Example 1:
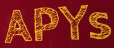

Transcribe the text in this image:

APYs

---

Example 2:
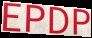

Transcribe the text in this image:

EPDP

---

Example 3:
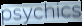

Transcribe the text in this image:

psychics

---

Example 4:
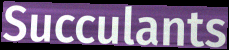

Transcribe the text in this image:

Succulants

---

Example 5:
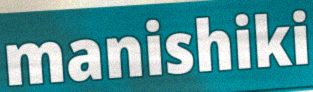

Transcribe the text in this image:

manishiki